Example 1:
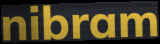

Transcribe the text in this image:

nibram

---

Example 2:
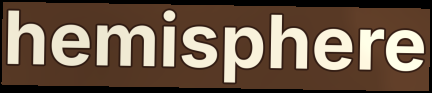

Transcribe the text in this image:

hemisphere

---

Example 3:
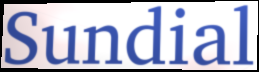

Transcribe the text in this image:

Sundial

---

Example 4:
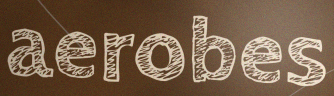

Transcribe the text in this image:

aerobes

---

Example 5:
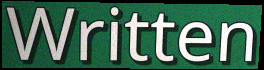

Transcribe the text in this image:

Written